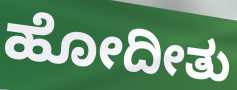
ಹೋದೀತು